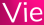
Vie